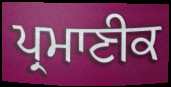
ਪ੍ਰਮਾਣੀਕ